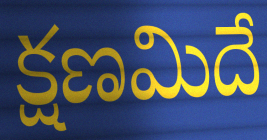
క్షణమిదే